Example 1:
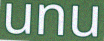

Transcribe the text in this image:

unu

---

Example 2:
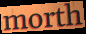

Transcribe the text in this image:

morth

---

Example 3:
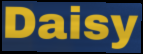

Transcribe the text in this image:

Daisy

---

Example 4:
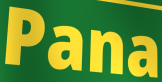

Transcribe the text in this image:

Pana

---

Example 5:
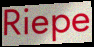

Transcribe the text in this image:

Riepe